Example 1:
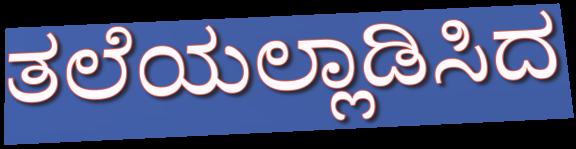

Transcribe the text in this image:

ತಲೆಯಲ್ಲಾಡಿಸಿದ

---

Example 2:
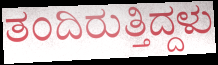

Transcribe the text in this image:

ತಂದಿರುತ್ತಿದ್ದಳು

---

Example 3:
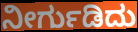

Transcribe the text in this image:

ನೀರ್ಗುಡಿದು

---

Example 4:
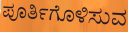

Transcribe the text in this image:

ಪೂರ್ತಿಗೊಳಿಸುವ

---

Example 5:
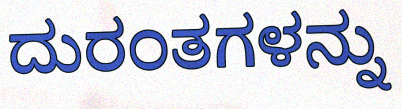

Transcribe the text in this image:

ದುರಂತಗಳನ್ನು